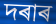
দৰাৰ